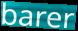
barer